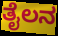
ತೈಲನ